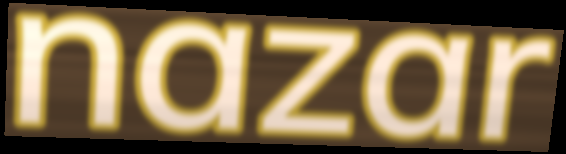
nazar